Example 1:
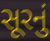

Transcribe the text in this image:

સૂરનું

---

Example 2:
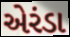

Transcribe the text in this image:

એરંડા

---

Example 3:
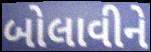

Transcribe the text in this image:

બોલાવીને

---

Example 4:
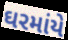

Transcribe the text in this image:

ઘરમાંયે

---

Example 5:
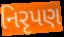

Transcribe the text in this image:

નિરૃપણ